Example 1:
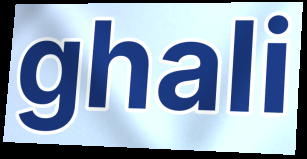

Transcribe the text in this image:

ghali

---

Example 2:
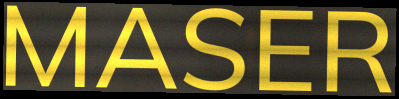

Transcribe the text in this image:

MASER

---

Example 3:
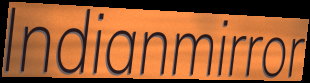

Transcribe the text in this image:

Indianmirror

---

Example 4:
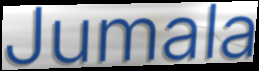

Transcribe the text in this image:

Jumala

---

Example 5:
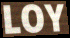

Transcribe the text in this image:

LOY